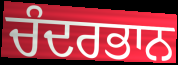
ਚੰਦਰਭਾਨ